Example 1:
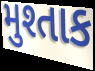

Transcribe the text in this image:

મુશ્તાક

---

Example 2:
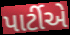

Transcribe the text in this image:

પાર્ટીએ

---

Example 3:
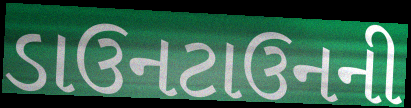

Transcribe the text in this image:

ડાઉનટાઉનની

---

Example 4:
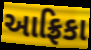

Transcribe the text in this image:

આફ્રિકા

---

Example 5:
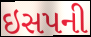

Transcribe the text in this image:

ઇસપની